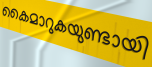
കൈമാറുകയുണ്ടായി